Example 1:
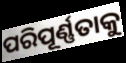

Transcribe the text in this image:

ପରିପୂର୍ଣ୍ଣତାକୁ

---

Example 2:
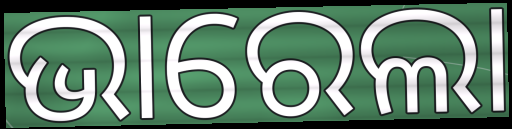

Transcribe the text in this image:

ଭାରେଲା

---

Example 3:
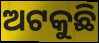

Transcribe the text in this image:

ଅଟକୁଛି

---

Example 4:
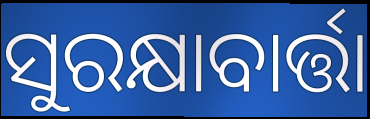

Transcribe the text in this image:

ସୁରକ୍ଷାବାର୍ତ୍ତା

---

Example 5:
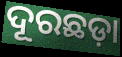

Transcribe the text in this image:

ଦୂରଛଡ଼ା